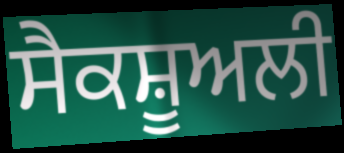
ਸੈਕਸ਼ੂਅਲੀ